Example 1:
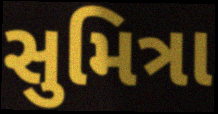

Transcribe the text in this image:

સુમિત્રા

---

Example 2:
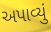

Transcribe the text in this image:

અપાવ્યું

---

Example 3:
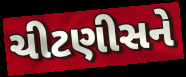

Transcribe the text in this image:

ચીટણીસને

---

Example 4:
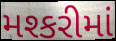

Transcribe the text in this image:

મશ્કરીમાં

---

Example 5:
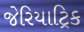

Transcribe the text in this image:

જેરિયાટ્રિક